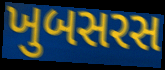
ખુબસરસ